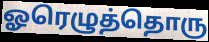
ஓரெழுத்தொரு